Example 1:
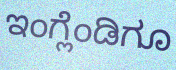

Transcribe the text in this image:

ಇಂಗ್ಲೆಂಡಿಗೂ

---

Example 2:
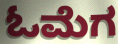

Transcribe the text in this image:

ಓಮೆಗ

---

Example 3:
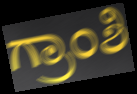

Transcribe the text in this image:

ಗ್ರಾಂಶಿ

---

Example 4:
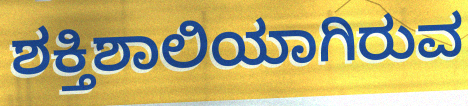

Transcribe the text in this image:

ಶಕ್ತಿಶಾಲಿಯಾಗಿರುವ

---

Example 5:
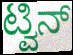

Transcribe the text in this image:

ಟ್ವಿನ್